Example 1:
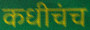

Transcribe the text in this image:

कधीचंच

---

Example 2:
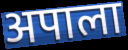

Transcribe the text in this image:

अपाला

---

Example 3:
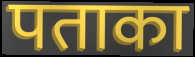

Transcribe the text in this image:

पताका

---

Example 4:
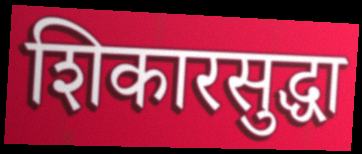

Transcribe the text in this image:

शिकारसुद्धा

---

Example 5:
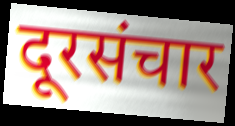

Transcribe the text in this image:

दूरसंचार